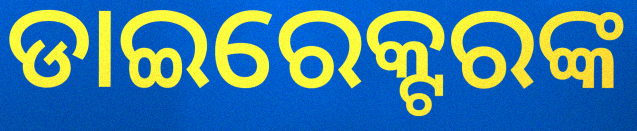
ଡାଇରେକ୍ଟରଙ୍କ